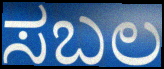
ಸಬಲ